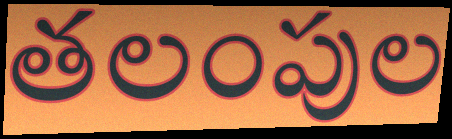
తలంపుల